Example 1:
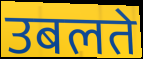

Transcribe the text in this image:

उबलते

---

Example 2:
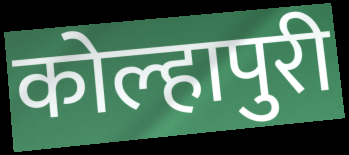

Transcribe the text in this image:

कोल्हापुरी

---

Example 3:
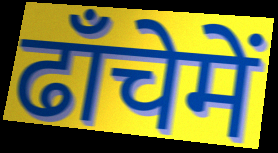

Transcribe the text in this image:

ढाँचेमें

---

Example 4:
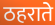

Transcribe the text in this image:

ठहराते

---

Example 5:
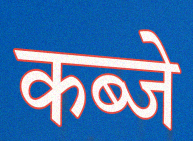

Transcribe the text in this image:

कब्‍जे